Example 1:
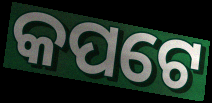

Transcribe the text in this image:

କପଟେ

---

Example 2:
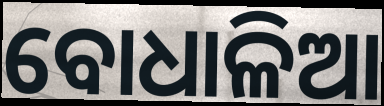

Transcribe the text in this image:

ବୋଧାଳିଆ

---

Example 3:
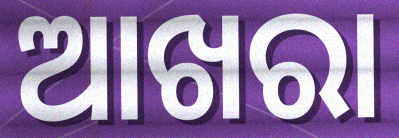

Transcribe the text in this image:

ଆଖରା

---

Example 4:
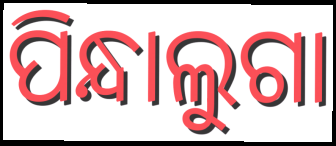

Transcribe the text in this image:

ପିନ୍ଧାଲୁଗା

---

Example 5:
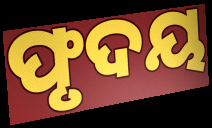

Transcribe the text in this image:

ଫୃଦୟ